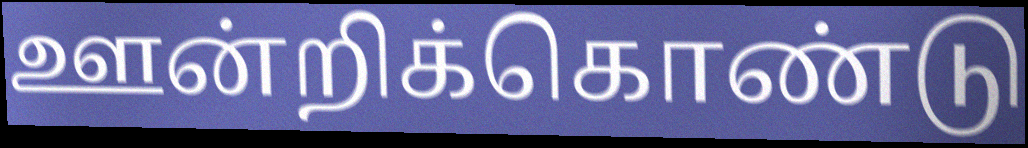
ஊன்றிக்கொண்டு